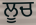
ਲੂਚ